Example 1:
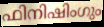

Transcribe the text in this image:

ഫിനിഷിംഗും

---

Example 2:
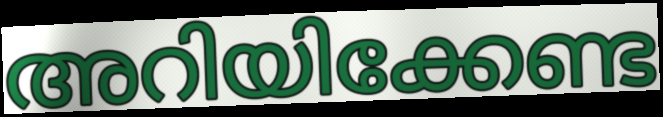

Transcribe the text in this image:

അറിയിക്കേണ്ട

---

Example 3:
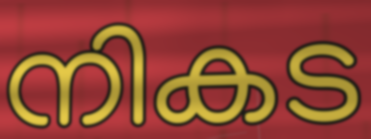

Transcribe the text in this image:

നികട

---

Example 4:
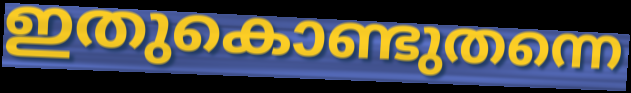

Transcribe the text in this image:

ഇതുകൊണ്ടുതന്നെ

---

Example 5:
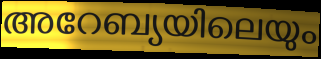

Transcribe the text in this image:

അറേബ്യയിലെയും